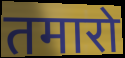
तमारो